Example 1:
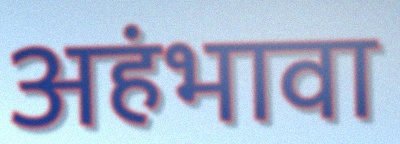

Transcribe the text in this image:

अहंभावा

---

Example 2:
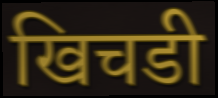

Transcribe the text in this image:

खिचडी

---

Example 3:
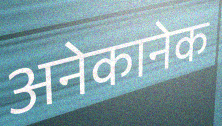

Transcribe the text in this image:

अनेकानेक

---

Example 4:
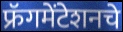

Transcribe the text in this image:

फ्रॅगमेंटेशनचे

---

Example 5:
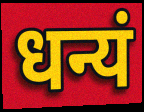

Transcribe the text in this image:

धन्यं